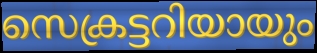
സെക്രട്ടറിയായും